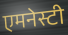
एमनेस्टी